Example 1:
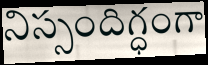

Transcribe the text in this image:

నిస్సందిగ్ధంగా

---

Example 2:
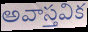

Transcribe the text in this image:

అవాస్తవిక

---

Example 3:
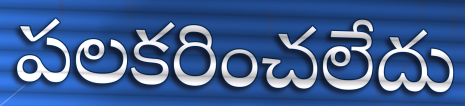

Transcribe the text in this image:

పలకరించలేదు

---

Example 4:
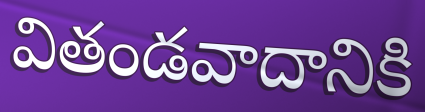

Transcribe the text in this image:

వితండవాదానికి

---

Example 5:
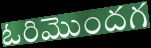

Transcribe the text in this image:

ఓరిమొందగ